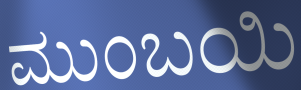
ಮುಂಬಯಿ